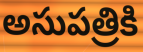
అసుపత్రికి